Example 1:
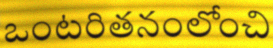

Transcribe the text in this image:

ఒంటరితనంలోంచి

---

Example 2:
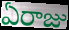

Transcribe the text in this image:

ఏరాజు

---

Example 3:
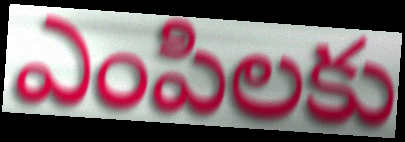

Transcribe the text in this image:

ఎంపిలకు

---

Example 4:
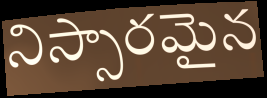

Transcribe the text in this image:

నిస్సారమైన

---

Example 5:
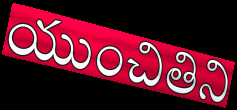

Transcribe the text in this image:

యుంచితిని